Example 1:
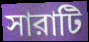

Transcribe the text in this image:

সারাটি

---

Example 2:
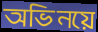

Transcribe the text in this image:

অভিনয়ে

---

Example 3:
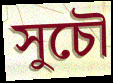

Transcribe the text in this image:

সুচৌ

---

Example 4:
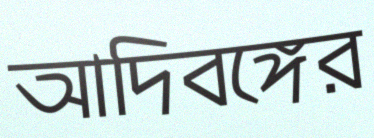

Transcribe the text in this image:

আদিবঙ্গের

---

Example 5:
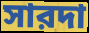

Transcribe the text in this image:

সারদা